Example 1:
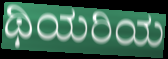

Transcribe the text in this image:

ಥಿಯರಿಯ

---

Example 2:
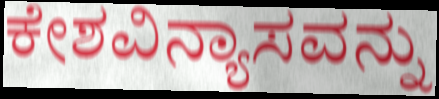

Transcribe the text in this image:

ಕೇಶವಿನ್ಯಾಸವನ್ನು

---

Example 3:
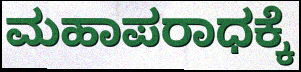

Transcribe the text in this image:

ಮಹಾಪರಾಧಕ್ಕೆ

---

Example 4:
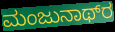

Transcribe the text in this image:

ಮಂಜುನಾಥ್‌ರ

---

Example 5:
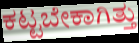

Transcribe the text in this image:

ಕಟ್ಟಬೇಕಾಗಿತ್ತು